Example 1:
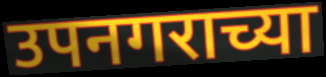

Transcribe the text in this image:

उपनगराच्या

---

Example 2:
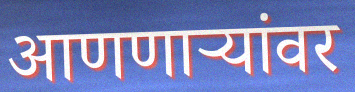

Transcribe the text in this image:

आणणाऱ्यांवर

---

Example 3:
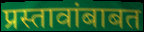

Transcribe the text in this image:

प्रस्तावांबाबत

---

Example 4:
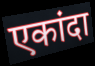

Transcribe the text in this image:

एकांदा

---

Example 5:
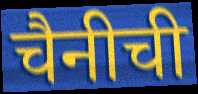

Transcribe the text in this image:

चैनीची